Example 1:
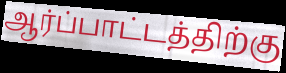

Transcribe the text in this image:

ஆர்ப்பாட்டத்திற்கு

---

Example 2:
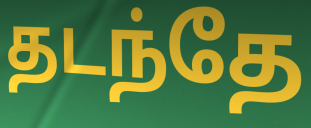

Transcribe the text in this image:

தடந்தே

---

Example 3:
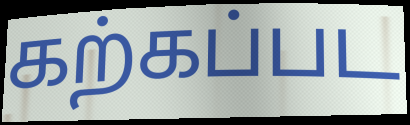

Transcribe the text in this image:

கற்கப்பட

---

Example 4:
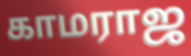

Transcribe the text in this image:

காமராஜ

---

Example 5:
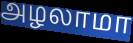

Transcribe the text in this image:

அழலாமா